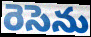
రెసెను